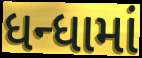
ધન્ધામાં